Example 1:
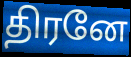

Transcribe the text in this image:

திரனே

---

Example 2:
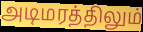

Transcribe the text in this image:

அடிமரத்திலும்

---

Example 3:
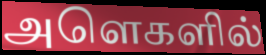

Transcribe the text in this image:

அளெகளில்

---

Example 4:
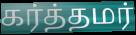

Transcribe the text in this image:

கர்த்தமர்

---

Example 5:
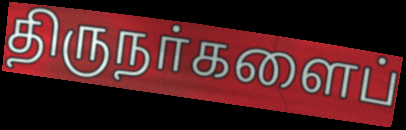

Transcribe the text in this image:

திருநர்களைப்